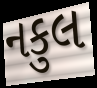
નકુલ